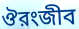
ঔরংজীব